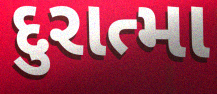
દુરાત્મા